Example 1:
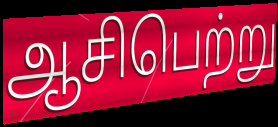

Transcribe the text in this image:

ஆசிபெற்று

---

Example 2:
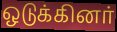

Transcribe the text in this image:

ஒடுக்கினர்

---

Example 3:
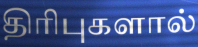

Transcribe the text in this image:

திரிபுகளால்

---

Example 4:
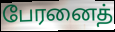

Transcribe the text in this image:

பேரனைத்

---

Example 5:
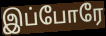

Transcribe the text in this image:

இப்போரே